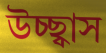
উচ্ছ্বাস